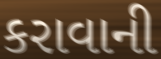
કરાવાની